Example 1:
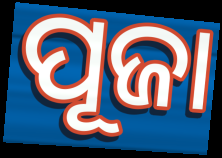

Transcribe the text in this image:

ପୂଜା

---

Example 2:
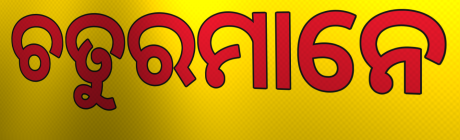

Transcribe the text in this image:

ଚତୁରମାନେ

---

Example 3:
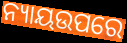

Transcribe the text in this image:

ନ୍ୟାୟଉପରେ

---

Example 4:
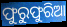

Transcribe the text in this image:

ଫୁରୁଫୁରିଆ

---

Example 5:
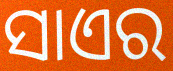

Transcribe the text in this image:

ସାଏର